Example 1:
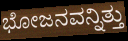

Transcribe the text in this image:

ಭೋಜನವನ್ನಿತ್ತು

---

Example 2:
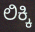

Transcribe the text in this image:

ಲಿಕ್ಕಿ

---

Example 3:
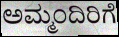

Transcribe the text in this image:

ಅಮ್ಮಂದಿರಿಗೆ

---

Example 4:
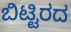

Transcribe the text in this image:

ಬಿಟ್ಟಿರದ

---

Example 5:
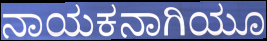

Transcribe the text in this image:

ನಾಯಕನಾಗಿಯೂ